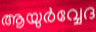
ആയുർവ്വേദ